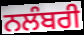
ਨਲੰਬਰੀ